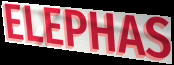
ELEPHAS